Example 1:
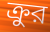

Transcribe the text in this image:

ক্রুর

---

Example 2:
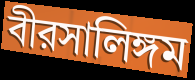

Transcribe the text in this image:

বীরসালিঙ্গম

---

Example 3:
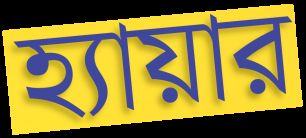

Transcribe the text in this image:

হ্যায়ার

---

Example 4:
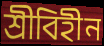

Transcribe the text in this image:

শ্রীবিহীন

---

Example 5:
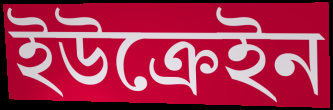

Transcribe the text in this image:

ইউক্রেইন